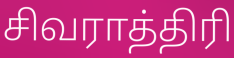
சிவராத்திரி